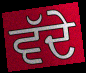
ਵੱਦੇ